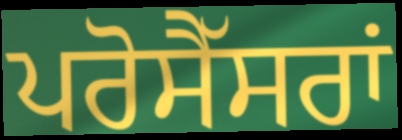
ਪਰੋਸੈੱਸਰਾਂ